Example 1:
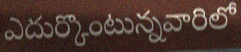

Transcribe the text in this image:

ఎదుర్కొంటున్నవారిలో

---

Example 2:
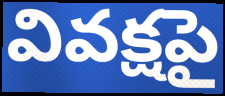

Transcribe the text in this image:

వివక్షపై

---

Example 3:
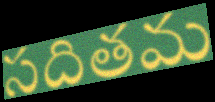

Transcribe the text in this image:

సదితమ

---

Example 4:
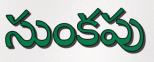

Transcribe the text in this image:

సుంకపు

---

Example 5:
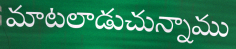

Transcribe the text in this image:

మాటలాడుచున్నాము